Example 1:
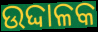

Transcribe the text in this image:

ଉଦ୍ଦାଳକ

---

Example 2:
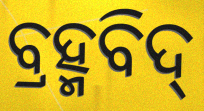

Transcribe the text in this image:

ବ୍ରହ୍ମବିଦ୍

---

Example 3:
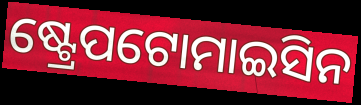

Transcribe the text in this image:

ଷ୍ଟ୍ରେପଟୋମାଇସିନ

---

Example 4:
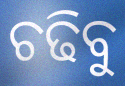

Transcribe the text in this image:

ଚଢିବୁ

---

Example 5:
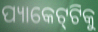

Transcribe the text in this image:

ପ୍ୟାକେଟ୍‌ଟିକୁ